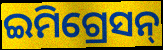
ଇମିଗ୍ରେସନ୍